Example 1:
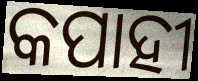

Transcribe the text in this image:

କପାହୀ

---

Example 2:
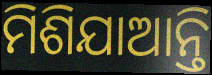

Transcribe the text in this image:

ମିଶିଯାଆନ୍ତି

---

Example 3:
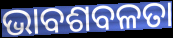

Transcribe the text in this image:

ଭାବଶବଳତା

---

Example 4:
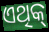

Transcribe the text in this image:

ଏଥିକ୍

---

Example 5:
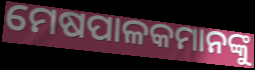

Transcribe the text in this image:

ମେଷପାଳକମାନଙ୍କୁ